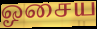
ஓசைய